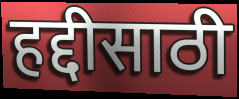
हद्दीसाठी